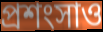
প্রশংসাও